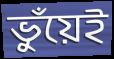
ভুঁয়েই